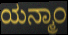
ಯನ್ಮಾಂ